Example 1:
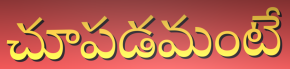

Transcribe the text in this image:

చూపడమంటే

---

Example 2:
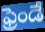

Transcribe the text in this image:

ఫ్రెండే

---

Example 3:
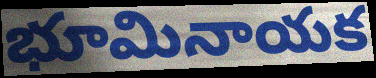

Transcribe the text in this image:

భూమినాయక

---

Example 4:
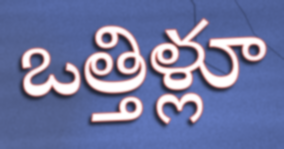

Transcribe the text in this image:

ఒత్తిళ్లూ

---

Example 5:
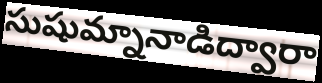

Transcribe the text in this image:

సుషుమ్నానాడిద్వారా